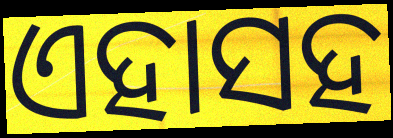
ଏହାସହ